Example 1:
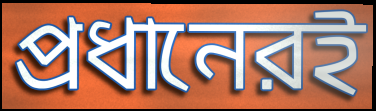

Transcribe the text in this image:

প্রধানেরই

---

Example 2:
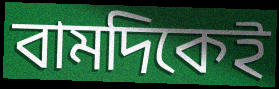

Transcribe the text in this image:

বামদিকেই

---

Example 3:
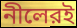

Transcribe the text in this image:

নীলেরই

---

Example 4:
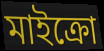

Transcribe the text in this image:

মাইক্রো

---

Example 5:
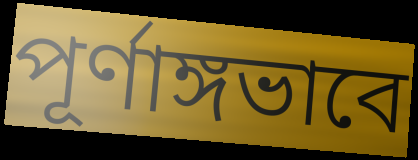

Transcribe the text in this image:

পূর্ণাঙ্গভাবে